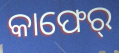
କାଫେର୍